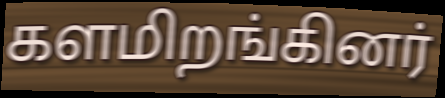
களமிறங்கினர்